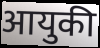
आयुकी